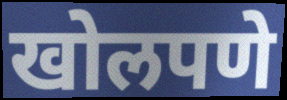
खोलपणे